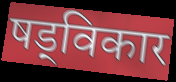
षड्‌विकार